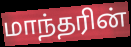
மாந்தரின்